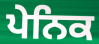
ਪੇਨਿਕ